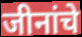
जीनांचे